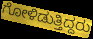
ಗೋಳಿಡುತ್ತಿದ್ದರು